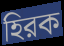
হিরক